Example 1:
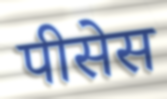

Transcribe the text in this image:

पीसेस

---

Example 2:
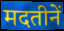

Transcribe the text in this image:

मदतीनें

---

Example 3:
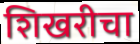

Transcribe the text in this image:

शिखरीचा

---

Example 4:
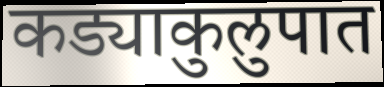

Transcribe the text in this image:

कड्याकुलुपात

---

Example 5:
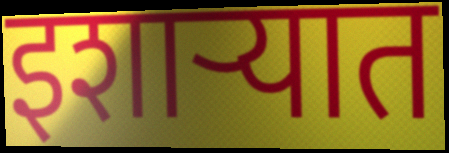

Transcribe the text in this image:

इशाऱ्यात